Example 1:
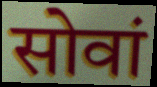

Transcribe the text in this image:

सोवां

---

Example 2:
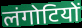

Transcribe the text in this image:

लंगोटियों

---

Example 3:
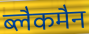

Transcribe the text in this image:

ब्लैकमैन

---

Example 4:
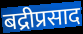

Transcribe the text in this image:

बद्रीप्रसाद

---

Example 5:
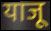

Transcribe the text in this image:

याजू